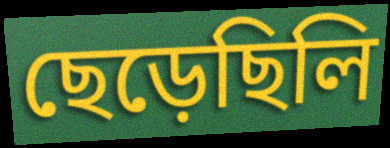
ছেড়েছিলি